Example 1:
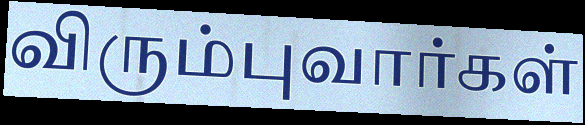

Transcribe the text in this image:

விரும்புவார்கள்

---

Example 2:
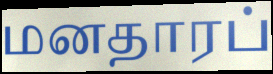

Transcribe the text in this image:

மனதாரப்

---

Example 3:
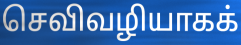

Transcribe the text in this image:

செவிவழியாகக்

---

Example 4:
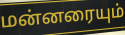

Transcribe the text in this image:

மன்னரையும்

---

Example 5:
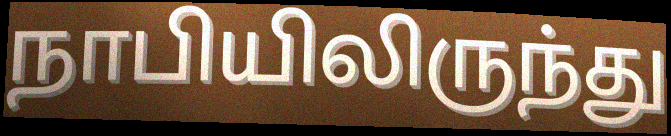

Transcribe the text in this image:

நாபியிலிருந்து